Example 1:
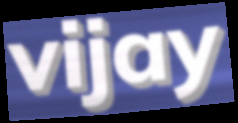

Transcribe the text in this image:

vijay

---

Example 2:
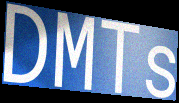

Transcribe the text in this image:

DMTs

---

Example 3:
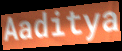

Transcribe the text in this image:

Aaditya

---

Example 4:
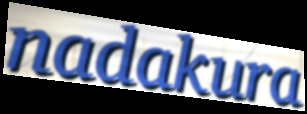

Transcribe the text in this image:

nadakura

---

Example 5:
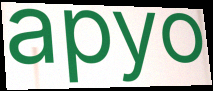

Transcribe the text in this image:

apyo